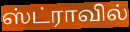
ஸ்ட்ராவில்